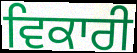
ਵਿਕਾਰੀ